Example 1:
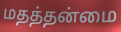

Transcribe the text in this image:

மதத்தன்மை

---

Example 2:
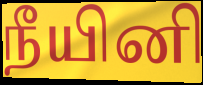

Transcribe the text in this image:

நீயினி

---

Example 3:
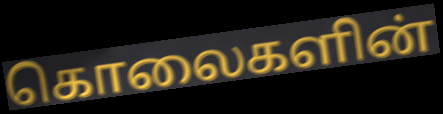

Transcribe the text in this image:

கொலைகளின்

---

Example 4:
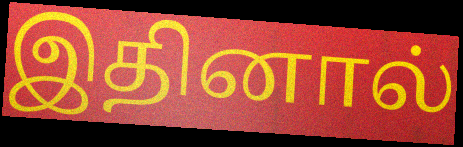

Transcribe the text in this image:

இதினால்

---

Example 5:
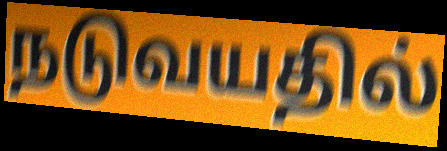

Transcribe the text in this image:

நடுவயதில்